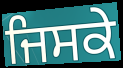
ਜਿਸਕੇ